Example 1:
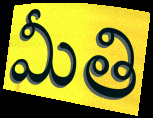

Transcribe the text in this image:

మీతి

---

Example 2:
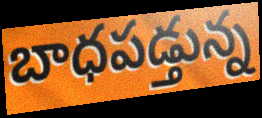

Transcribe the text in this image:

బాధపడ్తున్న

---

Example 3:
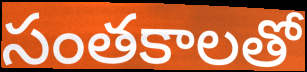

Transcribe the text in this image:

సంతకాలతో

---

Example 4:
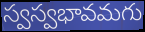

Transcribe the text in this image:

స్వస్వభావమగు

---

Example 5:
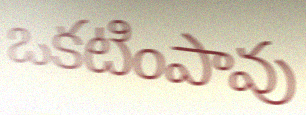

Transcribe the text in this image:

ఒకటింపావు